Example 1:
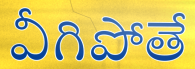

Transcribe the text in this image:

వీగిపోతే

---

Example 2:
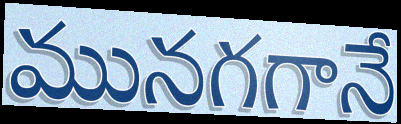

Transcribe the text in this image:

మునగగానే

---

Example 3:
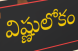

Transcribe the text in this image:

విష్ణులోకం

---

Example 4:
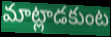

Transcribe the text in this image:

మాట్లాడకుంట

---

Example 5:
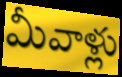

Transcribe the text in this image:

మీవాళ్లు